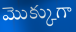
మొక్కుగా